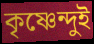
কৃষ্ণেন্দুই